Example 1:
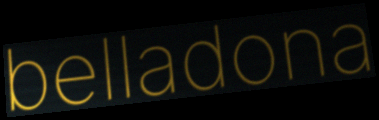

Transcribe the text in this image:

belladona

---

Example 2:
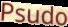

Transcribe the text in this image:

Psudo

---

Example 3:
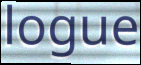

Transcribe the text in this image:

logue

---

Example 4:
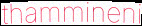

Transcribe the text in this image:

thammineni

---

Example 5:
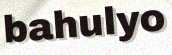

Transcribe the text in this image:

bahulyo